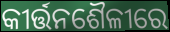
କୀର୍ତ୍ତନଶୈଳୀରେ